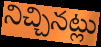
నిచ్చినట్లు